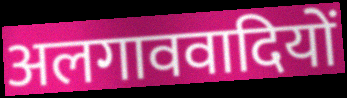
अलगाववादियों